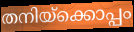
തനിയ്ക്കൊപ്പം